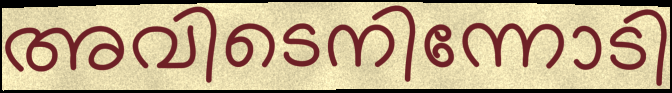
അവിടെനിന്നോടി